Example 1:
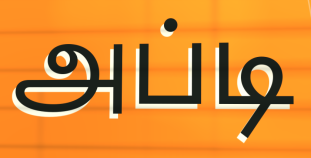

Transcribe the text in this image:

அப்டி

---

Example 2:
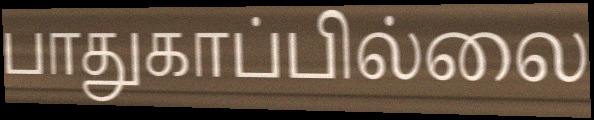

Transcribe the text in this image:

பாதுகாப்பில்லை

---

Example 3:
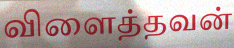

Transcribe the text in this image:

விளைத்தவன்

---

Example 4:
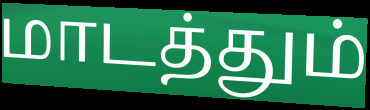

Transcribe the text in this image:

மாடத்தும்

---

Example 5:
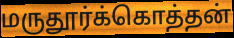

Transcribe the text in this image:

மருதூர்க்கொத்தன்